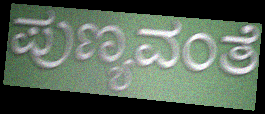
ಪುಣ್ಯವಂತೆ